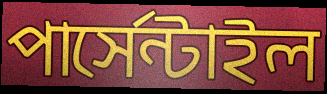
পার্সেন্টাইল